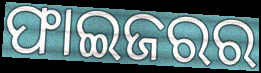
ଫାଇଜରର